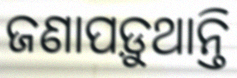
ଜଣାପଡ଼ୁଥାନ୍ତି